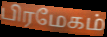
பிரமேகம்